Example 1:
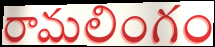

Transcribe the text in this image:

రామలింగం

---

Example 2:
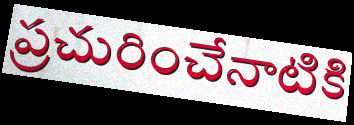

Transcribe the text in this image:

ప్రచురించేనాటికి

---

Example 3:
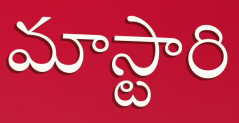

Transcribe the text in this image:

మాస్టారి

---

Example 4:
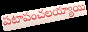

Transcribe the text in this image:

పటాపంచలయ్యాయి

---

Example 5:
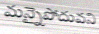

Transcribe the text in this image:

మన్నైపోదువని